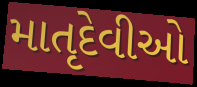
માતૃદેવીઓ